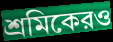
শ্রমিকেরও